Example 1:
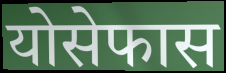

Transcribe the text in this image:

योसेफास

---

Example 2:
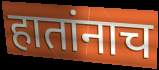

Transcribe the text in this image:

हातांनाच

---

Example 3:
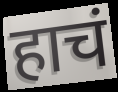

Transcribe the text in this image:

हाचं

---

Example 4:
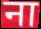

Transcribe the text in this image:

ना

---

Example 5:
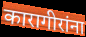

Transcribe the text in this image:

कारागीरांना